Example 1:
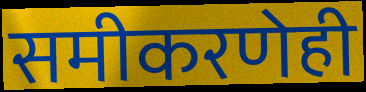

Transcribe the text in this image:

समीकरणेही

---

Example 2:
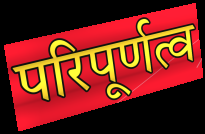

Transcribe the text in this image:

परिपूर्णत्व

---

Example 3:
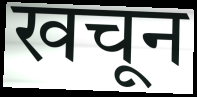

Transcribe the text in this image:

खचून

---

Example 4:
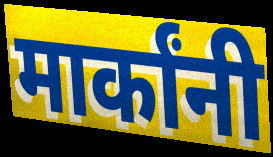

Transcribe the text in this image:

मार्कांनी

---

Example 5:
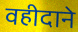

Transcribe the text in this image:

वहीदाने